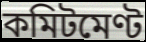
কমিটমেণ্ট